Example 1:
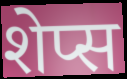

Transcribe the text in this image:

शेप्स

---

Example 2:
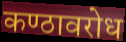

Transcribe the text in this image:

कण्ठावरोध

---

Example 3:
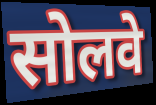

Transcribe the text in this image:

सोलवे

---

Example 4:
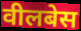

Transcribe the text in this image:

वीलबेस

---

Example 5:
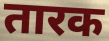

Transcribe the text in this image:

तारक